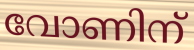
വോണിന്